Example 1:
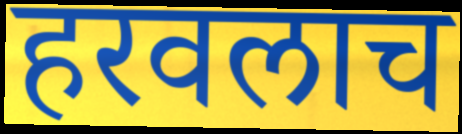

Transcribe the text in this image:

हरवलाच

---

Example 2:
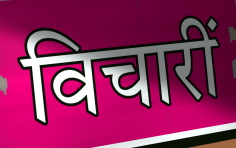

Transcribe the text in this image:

विचारीं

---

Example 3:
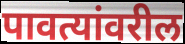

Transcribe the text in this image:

पावत्यांवरील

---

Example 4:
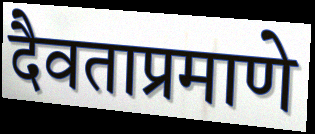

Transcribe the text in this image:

दैवताप्रमाणे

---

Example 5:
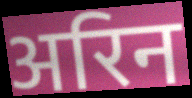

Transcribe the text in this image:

अरिन